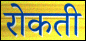
रोकती